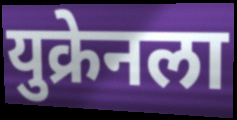
युक्रेनला